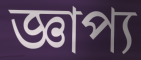
জ্ঞাপ্য